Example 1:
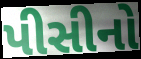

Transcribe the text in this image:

પીસીનો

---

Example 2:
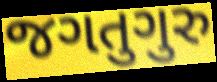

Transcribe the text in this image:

જગતુગુરુ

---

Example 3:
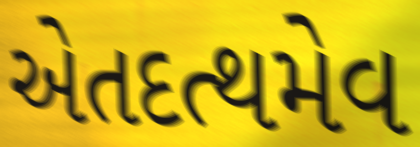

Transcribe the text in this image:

એતદત્થમેવ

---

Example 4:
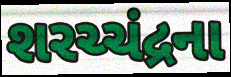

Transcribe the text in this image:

શરચ્ચંદ્રના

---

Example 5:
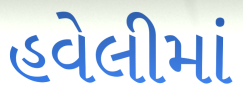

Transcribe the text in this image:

હવેલીમાં